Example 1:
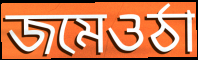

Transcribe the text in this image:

জমেওঠা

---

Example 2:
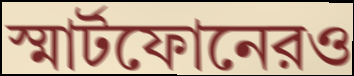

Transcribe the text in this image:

স্মার্টফোনেরও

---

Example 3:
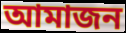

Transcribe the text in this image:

আমাজন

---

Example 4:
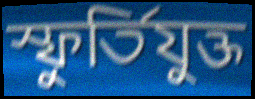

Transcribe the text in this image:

স্ফুর্তিযুক্ত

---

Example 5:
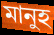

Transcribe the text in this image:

মানুহ